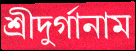
শ্রীদুর্গানাম